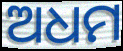
ଅଧମ